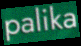
palika